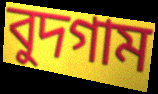
বুদগাম